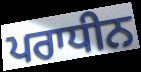
ਪਰਾਧੀਨ